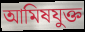
আমিষযুক্ত